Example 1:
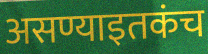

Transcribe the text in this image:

असण्याइतकंच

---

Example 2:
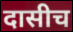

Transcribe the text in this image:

दासीच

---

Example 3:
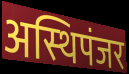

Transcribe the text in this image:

अस्थिपंजर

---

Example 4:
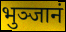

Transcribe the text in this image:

भुञ्जानं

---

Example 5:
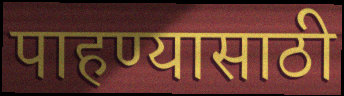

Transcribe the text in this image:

पाहण्यासाठी